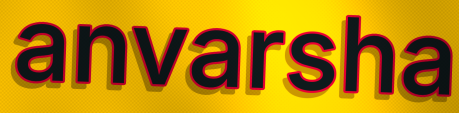
anvarsha